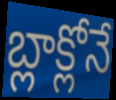
బ్లాక్లోనే